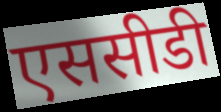
एससीडी